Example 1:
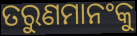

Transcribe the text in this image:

ତରୁଣମାନଂକୁ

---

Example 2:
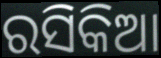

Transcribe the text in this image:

ରସିକିଆ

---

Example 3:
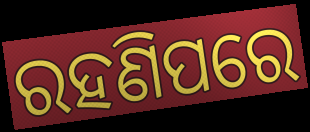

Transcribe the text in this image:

ରହଣିପରେ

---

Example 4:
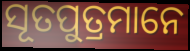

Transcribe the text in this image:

ସୂତପୁତ୍ରମାନେ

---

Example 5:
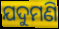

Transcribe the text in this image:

ଯଦୁମଣି